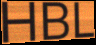
HBL